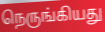
நெருங்கியது